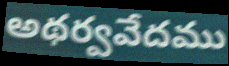
అథర్వవేదము